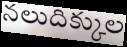
నలుదిక్కుల